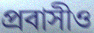
প্রবাসীও